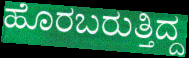
ಹೊರಬರುತ್ತಿದ್ದ